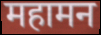
महामन